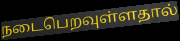
நடைபெறவுள்ளதால்